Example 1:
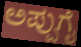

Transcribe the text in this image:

ಅಪ್ಪುಗೈ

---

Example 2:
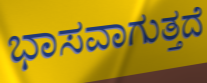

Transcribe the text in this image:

ಭಾಸವಾಗುತ್ತದೆ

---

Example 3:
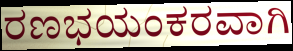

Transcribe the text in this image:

ರಣಭಯಂಕರವಾಗಿ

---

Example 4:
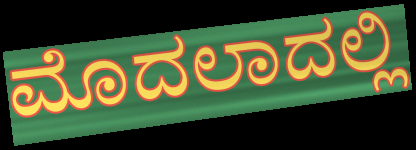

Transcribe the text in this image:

ಮೊದಲಾದಲ್ಲಿ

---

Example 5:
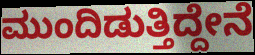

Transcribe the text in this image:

ಮುಂದಿಡುತ್ತಿದ್ದೇನೆ